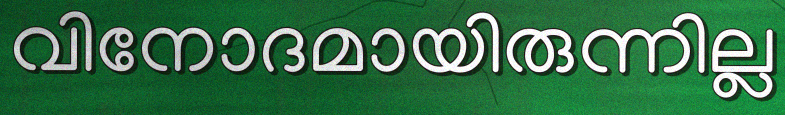
വിനോദമായിരുന്നില്ല